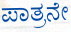
ಪಾತ್ರನೇ